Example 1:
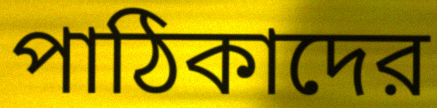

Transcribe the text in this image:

পাঠিকাদের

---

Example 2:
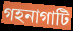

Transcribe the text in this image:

গহনাগাটি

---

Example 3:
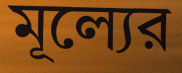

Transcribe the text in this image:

মূল্যের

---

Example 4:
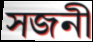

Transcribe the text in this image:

সজনী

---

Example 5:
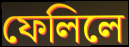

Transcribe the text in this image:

ফেলিলে